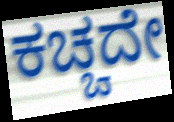
ಕಚ್ಚದೇ